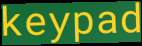
keypad